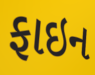
ફાઇન